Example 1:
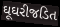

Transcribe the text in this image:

ઘૂઘરીજડિત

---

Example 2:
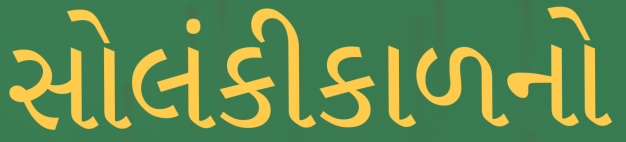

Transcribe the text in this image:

સોલંકીકાળનો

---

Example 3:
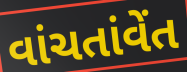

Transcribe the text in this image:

વાંચતાંવેંત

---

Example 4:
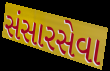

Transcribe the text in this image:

સંસારસેવા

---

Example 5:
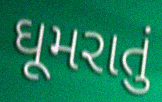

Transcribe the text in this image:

ઘૂમરાતું